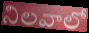
నిలవాలో